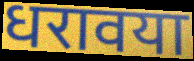
धरावया